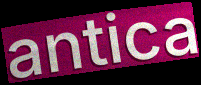
antica